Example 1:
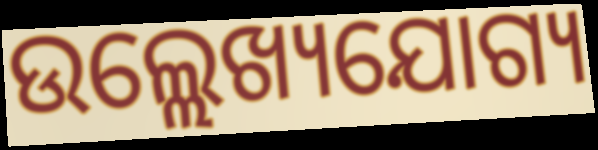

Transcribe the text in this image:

ଉଲ୍ଲେଖ୍ୟଯୋଗ୍ୟ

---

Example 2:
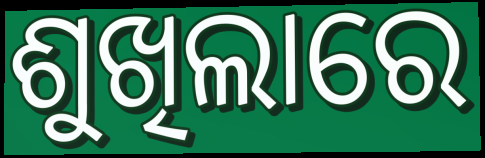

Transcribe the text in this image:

ଶୁଖିଲାରେ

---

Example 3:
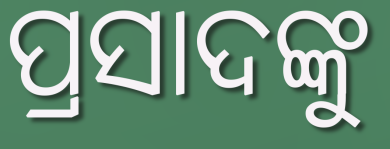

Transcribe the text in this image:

ପ୍ରସାଦଙ୍କୁ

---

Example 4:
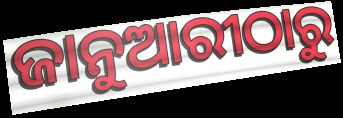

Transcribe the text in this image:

ଜାନୁଆରୀଠାରୁ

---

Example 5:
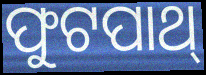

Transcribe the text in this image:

ଫୁଟପାଥ୍